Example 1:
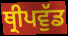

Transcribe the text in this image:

ਥ੍ਰੀਪਵੁੱਡ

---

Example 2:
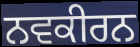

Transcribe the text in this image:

ਨਵਕੀਰਨ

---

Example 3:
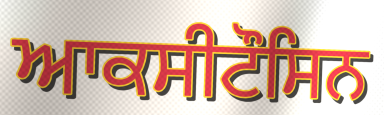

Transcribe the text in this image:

ਆਕਸੀਟੌਸਿਨ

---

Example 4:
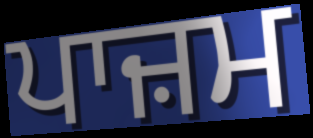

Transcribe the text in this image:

ਪਾਜ਼ਮ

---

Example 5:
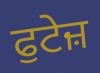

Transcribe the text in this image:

ਫੁਟੇਜ਼